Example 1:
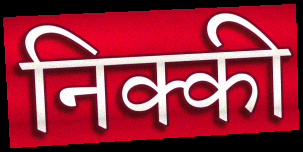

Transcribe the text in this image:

निक्की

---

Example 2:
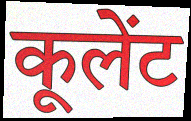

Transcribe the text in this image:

कूलेंट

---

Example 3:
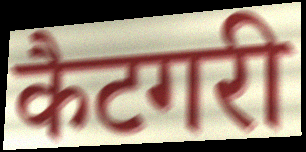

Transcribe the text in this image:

कैटगरी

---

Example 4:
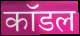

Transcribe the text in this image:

कॉडल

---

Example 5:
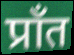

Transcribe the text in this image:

प्राँत